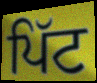
ਪਿੱਟ